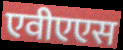
एवीएएस